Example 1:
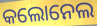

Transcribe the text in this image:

କଲୋନେଲ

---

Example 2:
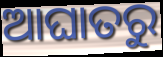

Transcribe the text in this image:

ଆଘାତରୁ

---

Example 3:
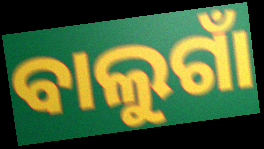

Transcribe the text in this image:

ବାଲୁଗାଁ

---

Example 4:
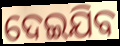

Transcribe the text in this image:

ଦେଇଯିବ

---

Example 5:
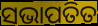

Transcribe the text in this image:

ସଭାପତିତ